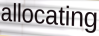
allocating